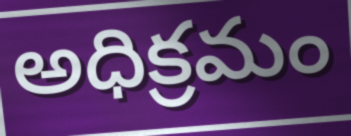
అధిక్రమం